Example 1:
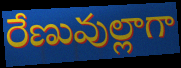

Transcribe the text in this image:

రేణువుల్లాగా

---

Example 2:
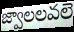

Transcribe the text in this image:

జ్వాలలవలె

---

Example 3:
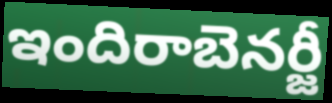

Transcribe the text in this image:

ఇందిరాబెనర్జీ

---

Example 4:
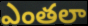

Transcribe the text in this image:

ఎంతలా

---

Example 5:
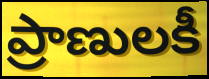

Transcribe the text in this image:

ప్రాణులకీ